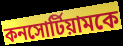
কনসোর্টিয়ামকে